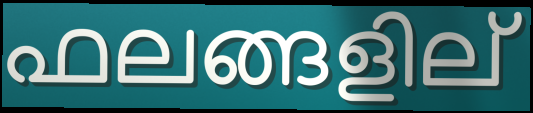
ഫലങ്ങളില്